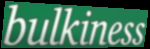
bulkiness